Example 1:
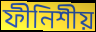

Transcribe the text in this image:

ফীনিশীয়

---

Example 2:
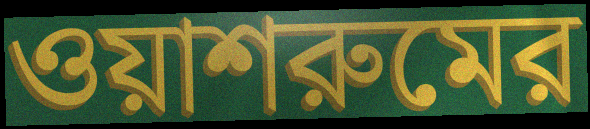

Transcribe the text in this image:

ওয়াশরুমের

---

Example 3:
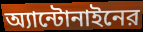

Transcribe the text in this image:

অ্যান্টোনাইনের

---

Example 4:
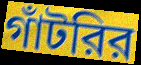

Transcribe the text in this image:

গাঁটরির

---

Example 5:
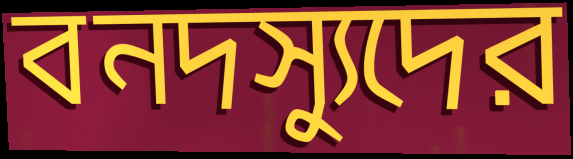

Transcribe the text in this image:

বনদস্যুদের